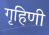
गृहिणी